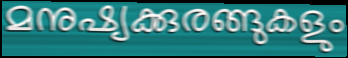
മനുഷ്യക്കുരങ്ങുകളും